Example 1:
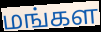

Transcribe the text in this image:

மங்கள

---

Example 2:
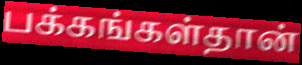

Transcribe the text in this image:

பக்கங்கள்தான்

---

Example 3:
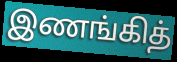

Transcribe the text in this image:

இணங்கித்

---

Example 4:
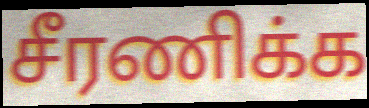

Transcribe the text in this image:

சீரணிக்க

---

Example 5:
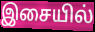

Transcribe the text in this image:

இசையில்